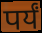
पर्यं